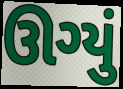
ઊગ્યું